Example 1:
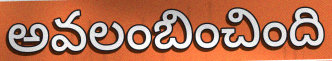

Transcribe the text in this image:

అవలంబించింది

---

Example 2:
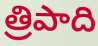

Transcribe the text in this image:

త్రిపాది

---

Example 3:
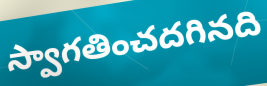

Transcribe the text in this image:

స్వాగతించదగినది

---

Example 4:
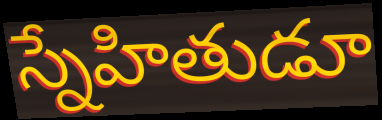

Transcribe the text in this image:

స్నేహితుడూ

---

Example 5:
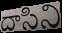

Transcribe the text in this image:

దాసిని